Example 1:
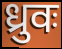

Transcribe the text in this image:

ध्रुवः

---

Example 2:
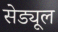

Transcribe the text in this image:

सेड्यूल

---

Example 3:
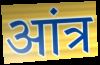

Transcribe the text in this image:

आंत्र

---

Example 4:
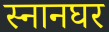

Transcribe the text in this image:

स्नानघर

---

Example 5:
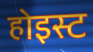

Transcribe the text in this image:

होइस्ट